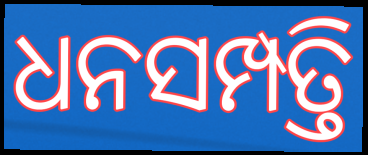
ଧନସମ୍ପତ୍ତି